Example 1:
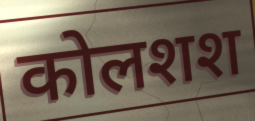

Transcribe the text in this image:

कोलशश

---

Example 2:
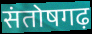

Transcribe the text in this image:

संतोषगढ़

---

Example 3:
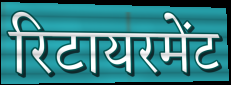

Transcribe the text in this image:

रिटायरमेंट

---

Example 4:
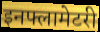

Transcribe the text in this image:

इनफ्लामेटरी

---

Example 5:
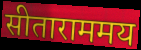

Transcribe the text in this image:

सीताराममय